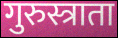
गुरुस्त्राता